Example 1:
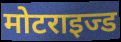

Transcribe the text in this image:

मोटराइज्ड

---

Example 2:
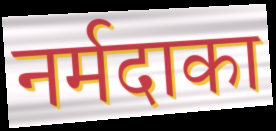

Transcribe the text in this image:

नर्मदाका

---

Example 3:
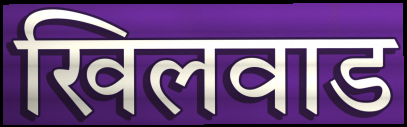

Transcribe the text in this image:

खिलवाड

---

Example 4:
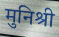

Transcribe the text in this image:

मुनिश्री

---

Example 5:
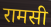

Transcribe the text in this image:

रामसी